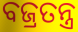
ବଜ୍ରତନ୍ତ୍ର